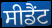
ਸੀਡੈਂਟ